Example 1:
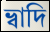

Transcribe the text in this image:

ভ্বাদি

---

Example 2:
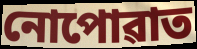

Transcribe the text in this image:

নোপোৱাত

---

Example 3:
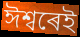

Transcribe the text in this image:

ঈশ্বৰেই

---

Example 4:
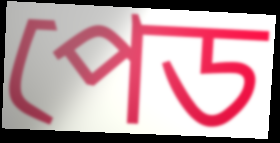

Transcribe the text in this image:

পেড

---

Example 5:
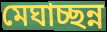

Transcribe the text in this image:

মেঘাচ্ছন্ন